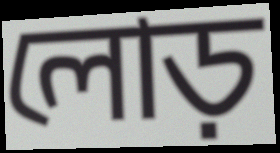
লোড়